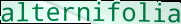
alternifolia